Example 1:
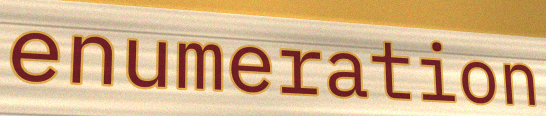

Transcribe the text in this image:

enumeration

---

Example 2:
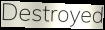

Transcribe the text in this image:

Destroyed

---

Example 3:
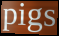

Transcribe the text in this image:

pigs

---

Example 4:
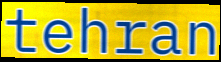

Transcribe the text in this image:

tehran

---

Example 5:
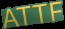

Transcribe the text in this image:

ATTF